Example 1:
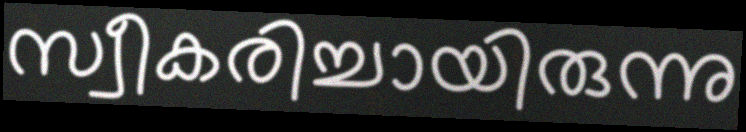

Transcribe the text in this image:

സ്വീകരിച്ചായിരുന്നു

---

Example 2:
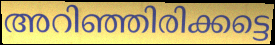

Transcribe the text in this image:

അറിഞ്ഞിരിക്കട്ടെ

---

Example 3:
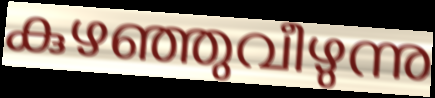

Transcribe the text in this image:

കുഴഞ്ഞുവീഴുന്നു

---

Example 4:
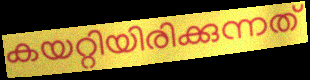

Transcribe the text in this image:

കയറ്റിയിരിക്കുന്നത്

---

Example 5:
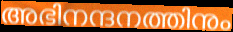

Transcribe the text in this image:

അഭിനന്ദനത്തിനും